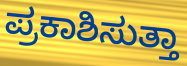
ಪ್ರಕಾಶಿಸುತ್ತಾ